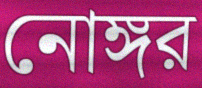
নোঙ্গর